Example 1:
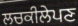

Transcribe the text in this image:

ਲਚਕੀਲੇਪਣ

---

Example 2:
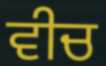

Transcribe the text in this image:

ਵੀਚ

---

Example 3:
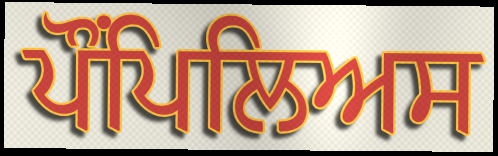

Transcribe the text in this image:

ਪੌਂਪਿਲਿਅਸ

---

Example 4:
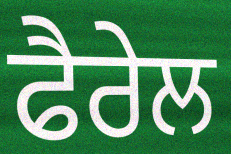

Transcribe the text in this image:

ਫੈਰੇਲ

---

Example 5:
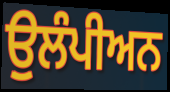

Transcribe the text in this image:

ਉੁਲੰਪੀਅਨ